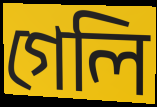
গেলি